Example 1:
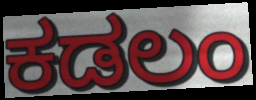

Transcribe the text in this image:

ಕಡಲಂ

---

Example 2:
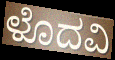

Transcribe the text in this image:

ಳೊದವಿ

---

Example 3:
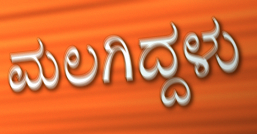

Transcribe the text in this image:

ಮಲಗಿದ್ದಳು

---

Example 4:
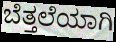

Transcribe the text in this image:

ಬೆತ್ತಲೆಯಾಗಿ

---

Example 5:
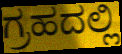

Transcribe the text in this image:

ಗ್ರಹದಲ್ಲಿ